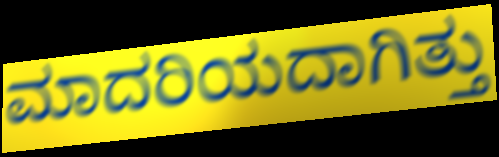
ಮಾದರಿಯದಾಗಿತ್ತು